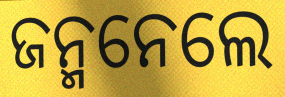
ଜନ୍ମନେଲେ